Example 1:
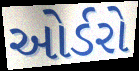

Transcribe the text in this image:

ઓર્ડરો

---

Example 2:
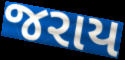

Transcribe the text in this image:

જરાય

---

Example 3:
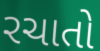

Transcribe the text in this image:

રચાતો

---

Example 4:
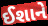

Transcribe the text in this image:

ઈશાને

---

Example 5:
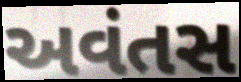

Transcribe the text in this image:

અવંતસ